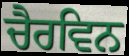
ਚੈਰਵਿਨ